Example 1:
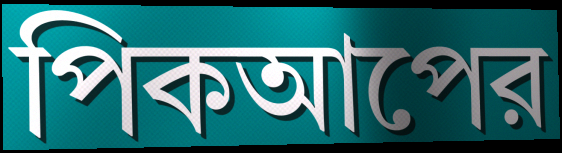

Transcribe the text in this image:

পিকআপের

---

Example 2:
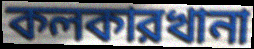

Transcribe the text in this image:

কলকারখানা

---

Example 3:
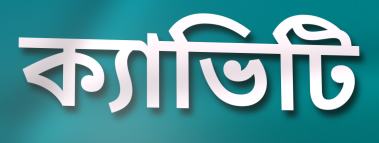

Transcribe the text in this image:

ক্যাভিটি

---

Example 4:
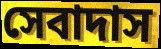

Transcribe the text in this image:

সেবাদাস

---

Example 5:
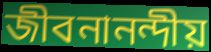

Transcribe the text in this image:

জীবনানন্দীয়